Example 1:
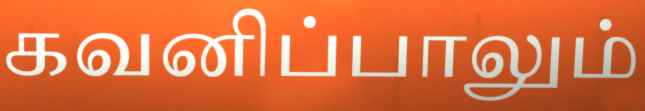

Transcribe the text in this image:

கவனிப்பாலும்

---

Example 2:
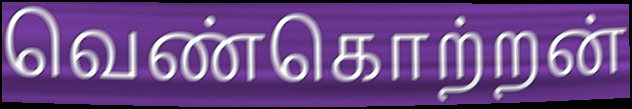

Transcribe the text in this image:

வெண்கொற்றன்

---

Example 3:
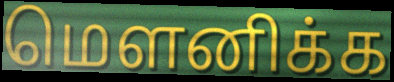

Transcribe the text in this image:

மெளனிக்க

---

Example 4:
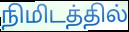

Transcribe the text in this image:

நிமிடத்தில்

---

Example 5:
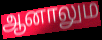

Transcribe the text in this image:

ஆனாலும